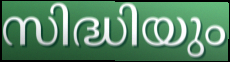
സിദ്ധിയും